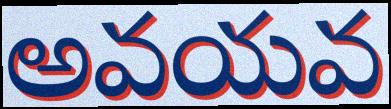
అవయవ